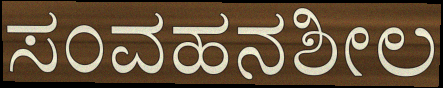
ಸಂವಹನಶೀಲ